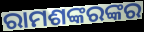
ରାମଶଙ୍କରଙ୍କର